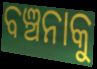
ବଞ୍ଚନାକୁ